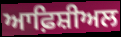
ਆਫ਼ਿਸ਼ੀਅਲ